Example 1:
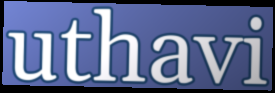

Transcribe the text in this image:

uthavi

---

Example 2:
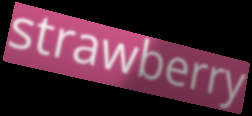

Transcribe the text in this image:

strawberry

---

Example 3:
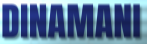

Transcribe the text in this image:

DINAMANI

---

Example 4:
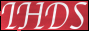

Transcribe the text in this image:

IHDS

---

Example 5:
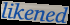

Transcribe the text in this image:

likened